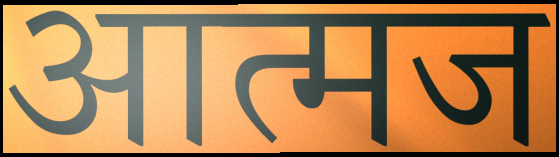
आत्मज